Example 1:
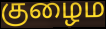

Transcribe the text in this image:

குழைம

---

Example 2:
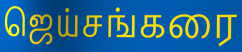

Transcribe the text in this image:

ஜெய்சங்கரை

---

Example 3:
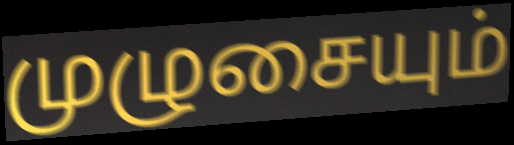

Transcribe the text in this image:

முழுசையும்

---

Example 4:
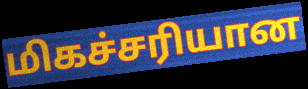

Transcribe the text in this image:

மிகச்சரியான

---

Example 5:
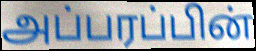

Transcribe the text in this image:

அப்பரப்பின்